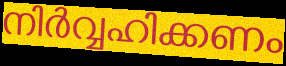
നിർവ്വഹിക്കണം